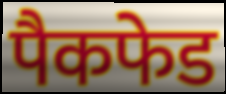
पैकफेड